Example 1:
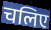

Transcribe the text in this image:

चलिए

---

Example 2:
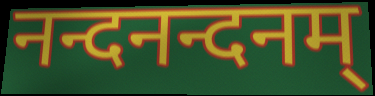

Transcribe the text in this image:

नन्दनन्दनम्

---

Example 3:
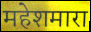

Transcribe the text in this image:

महेशमारा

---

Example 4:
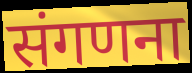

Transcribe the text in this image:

संगणना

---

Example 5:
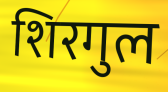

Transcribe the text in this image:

शिरगुल